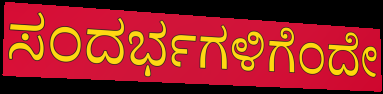
ಸಂದರ್ಭಗಳಿಗೆಂದೇ